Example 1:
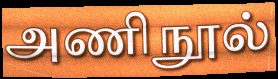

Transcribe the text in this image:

அணிநூல்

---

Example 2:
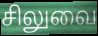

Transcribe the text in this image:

சிலுவை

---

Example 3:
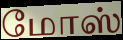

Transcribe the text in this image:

மோஸ்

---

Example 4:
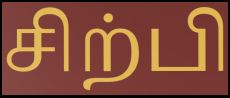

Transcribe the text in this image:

சிற்பி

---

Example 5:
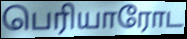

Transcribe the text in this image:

பெரியாரோட